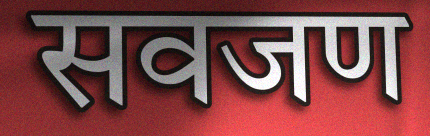
सवजण